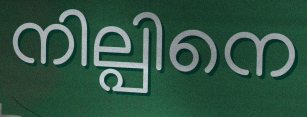
നില്പിനെ